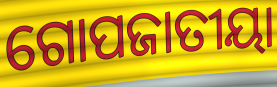
ଗୋପଜାତୀୟା